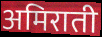
अमिराती